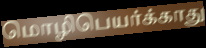
மொழிபெயர்க்காது